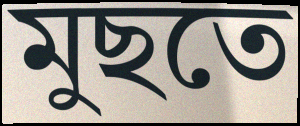
মুছতে